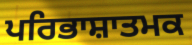
ਪਰਿਭਾਸ਼ਾਤਮਕ